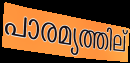
പാരമ്യത്തില്